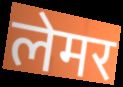
लेमर